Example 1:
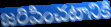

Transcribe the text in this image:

జరిపించటానికి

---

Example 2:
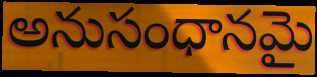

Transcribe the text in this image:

అనుసంధానమై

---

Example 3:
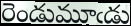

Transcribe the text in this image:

రెండుమూఁడు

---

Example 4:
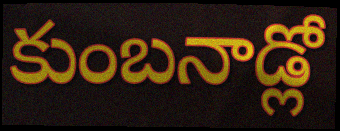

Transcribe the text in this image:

కుంబనాడ్లో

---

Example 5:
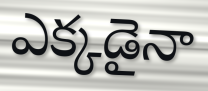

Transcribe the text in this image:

ఎక్కడైనా